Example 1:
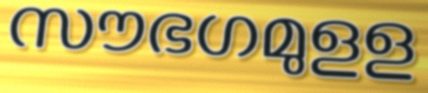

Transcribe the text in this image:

സൗഭഗമുളള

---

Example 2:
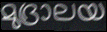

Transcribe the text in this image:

മുദ്രാലയ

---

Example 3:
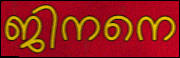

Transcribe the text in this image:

ജിനനെ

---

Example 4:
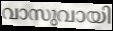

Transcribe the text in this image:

വാസുവായി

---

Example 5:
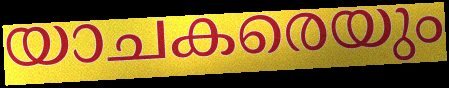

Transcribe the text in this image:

യാചകരെയും